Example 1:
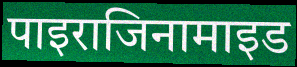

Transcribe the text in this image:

पाइराजिनामाइड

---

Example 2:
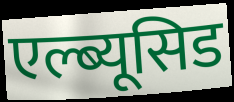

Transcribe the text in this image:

एल्ब्यूसिड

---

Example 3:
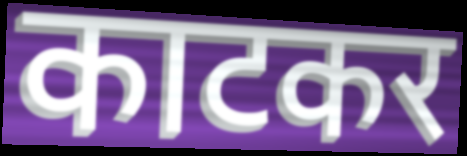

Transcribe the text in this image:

काटकर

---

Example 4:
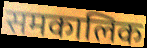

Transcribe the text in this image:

समकालिक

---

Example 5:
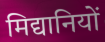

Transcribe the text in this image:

मिद्यानियों